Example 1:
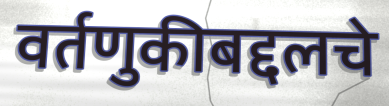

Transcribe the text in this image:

वर्तणुकीबद्दलचे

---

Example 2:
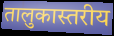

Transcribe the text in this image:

तालुकास्तरीय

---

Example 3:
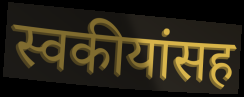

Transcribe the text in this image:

स्वकीयांसह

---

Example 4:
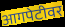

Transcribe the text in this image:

आगपेटीवर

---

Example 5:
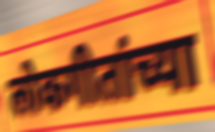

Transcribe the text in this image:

लोकगीतांच्या